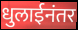
धुलाईनंतर